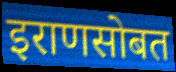
इराणसोबत